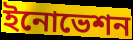
ইনোভেশন